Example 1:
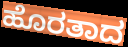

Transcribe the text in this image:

ಹೊರತಾದ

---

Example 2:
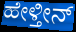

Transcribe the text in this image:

ಹೇಳ್ತೀನ್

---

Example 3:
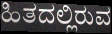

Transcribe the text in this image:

ಹಿತದಲ್ಲಿರುವ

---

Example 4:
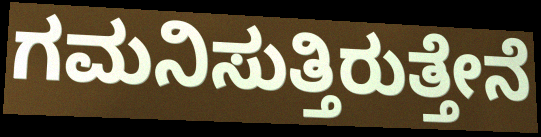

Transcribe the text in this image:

ಗಮನಿಸುತ್ತಿರುತ್ತೇನೆ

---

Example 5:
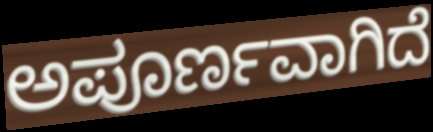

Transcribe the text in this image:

ಅಪೂರ್ಣವಾಗಿದೆ